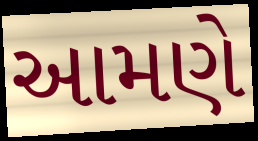
આમણે